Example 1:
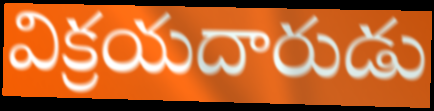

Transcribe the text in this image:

విక్రయదారుడు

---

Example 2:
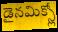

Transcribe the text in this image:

డైనమిక్స్లో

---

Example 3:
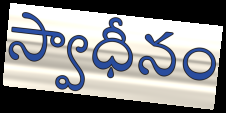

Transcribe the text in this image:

స్వాధీనం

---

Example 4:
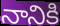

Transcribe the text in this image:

నానికి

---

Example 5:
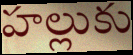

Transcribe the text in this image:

హల్లుకు